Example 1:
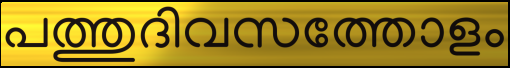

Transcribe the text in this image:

പത്തുദിവസത്തോളം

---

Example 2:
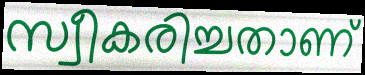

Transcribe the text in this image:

സ്വീകരിച്ചതാണ്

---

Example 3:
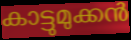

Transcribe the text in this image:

കാട്ടുമുക്കൻ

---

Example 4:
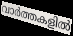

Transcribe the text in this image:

വാർത്തകളിൽ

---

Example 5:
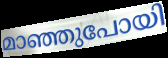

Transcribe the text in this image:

മാഞ്ഞുപോയി